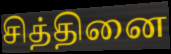
சித்தினை